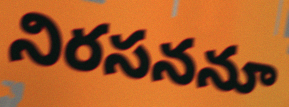
నిరసననూ